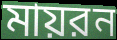
মায়রন